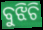
ବୁଝିଚି